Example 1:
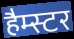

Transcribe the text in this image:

हैम्स्टर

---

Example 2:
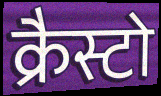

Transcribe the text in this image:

क्रैस्टो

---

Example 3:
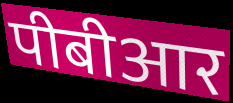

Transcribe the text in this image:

पीबीआर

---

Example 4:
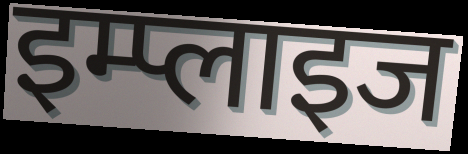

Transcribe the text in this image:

इम्प्लाइज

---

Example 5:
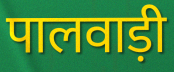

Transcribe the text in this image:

पालवाड़ी